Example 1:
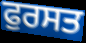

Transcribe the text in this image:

ਫੁਰਸਤ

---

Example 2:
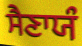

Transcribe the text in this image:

ਸੈਣਾਯੰ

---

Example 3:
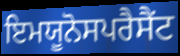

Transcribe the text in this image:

ਇਮਯੂਨੋਸਪਰੈਸੈਂਟ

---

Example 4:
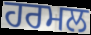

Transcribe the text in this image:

ਹਰਮਲ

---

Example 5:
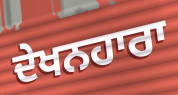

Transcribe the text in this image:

ਦੇਖਨਹਾਰਾ